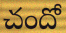
చందో